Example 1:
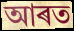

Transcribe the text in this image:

আৰত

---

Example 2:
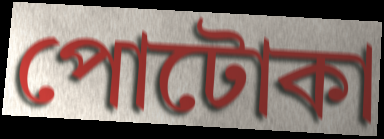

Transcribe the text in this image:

পোটোকা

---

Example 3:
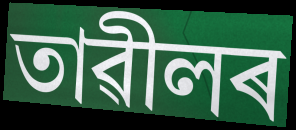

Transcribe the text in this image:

তাৱীলৰ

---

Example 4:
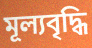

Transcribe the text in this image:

মূল্যবৃদ্ধি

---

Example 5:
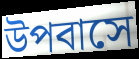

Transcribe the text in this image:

উপবাসে